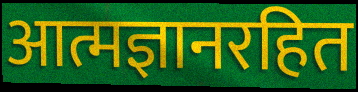
आत्मज्ञानरहित